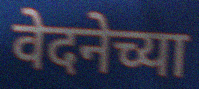
वेदनेच्या